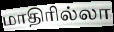
மாதிரில்லா